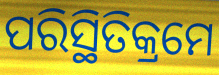
ପରିସ୍ଥିତିକ୍ରମେ